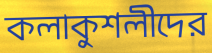
কলাকুশলীদের